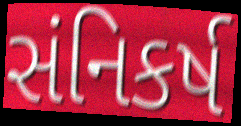
સંનિકર્ષ